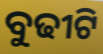
ବୁଢୀଟି